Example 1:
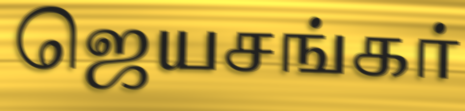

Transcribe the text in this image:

ஜெயசங்கர்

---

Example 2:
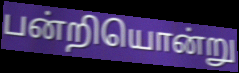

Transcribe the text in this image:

பன்றியொன்று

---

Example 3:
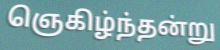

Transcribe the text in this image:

ஞெகிழ்ந்தன்று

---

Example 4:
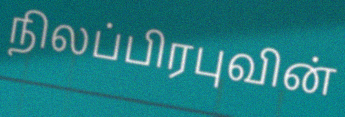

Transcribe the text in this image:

நிலப்பிரபுவின்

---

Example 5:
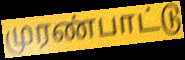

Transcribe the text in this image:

முரண்பாட்டு